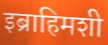
इब्राहिमशी